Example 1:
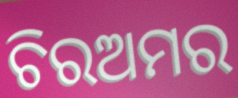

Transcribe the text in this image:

ଚିରଅମର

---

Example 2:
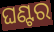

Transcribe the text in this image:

ଘଣ୍ଟର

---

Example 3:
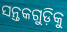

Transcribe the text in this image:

ସନ୍ତକଗୁଡ଼ିକୁ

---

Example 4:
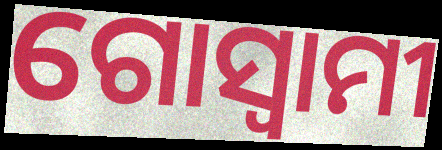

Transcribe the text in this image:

ଗୋସ୍ଵାମୀ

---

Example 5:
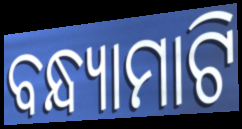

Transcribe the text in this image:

ବନ୍ଧ୍ୟାମାଟି